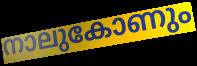
നാലുകോണും